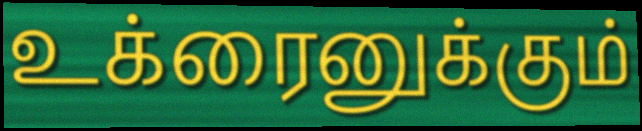
உக்ரைனுக்கும்